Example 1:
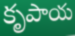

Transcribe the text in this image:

కృపాయ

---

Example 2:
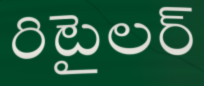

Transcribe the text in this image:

రిటైలర్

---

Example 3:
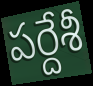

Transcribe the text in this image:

పర్దేశీ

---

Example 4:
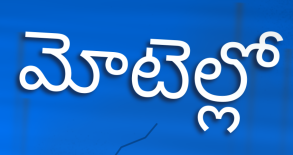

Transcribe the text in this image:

మోటెల్లో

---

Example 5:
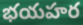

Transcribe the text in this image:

భయహర